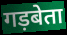
गड़बेता